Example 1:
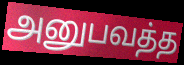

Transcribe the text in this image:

அனுபவத்த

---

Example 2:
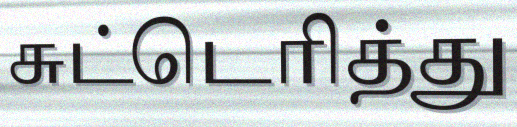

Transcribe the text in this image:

சுட்டெரித்து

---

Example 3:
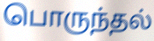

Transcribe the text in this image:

பொருந்தல்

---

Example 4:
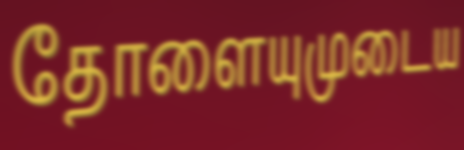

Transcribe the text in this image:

தோளையுமுடைய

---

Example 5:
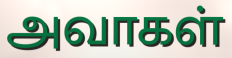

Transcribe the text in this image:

அவாகள்